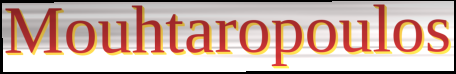
Mouhtaropoulos